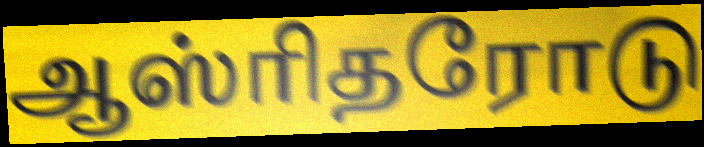
ஆஸ்ரிதரோடு